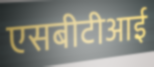
एसबीटीआई